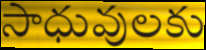
సాధువులకు